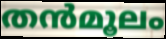
തൻമൂലം